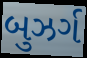
બુઝર્ગ